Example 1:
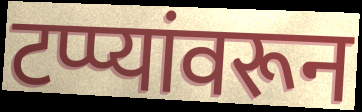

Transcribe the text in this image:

टप्प्यांवरून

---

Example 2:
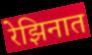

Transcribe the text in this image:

रेझिनात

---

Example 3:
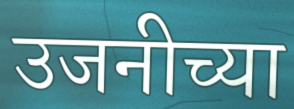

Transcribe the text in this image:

उजनीच्या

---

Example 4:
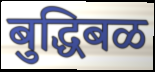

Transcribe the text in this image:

बुद्धिबळ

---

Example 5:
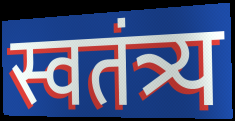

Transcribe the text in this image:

स्वतंत्र्य